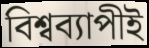
বিশ্বব্যাপীই